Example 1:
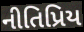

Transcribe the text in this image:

નીતિપ્રિય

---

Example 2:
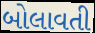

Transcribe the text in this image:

બોલાવતી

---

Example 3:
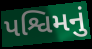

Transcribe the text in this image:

પશ્વિમનું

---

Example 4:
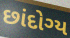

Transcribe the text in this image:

છાંદોગ્ય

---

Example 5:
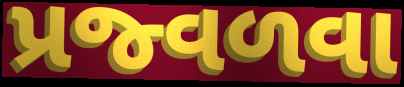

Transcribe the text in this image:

પ્રજ્વળવા